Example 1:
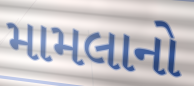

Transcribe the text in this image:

મામલાનો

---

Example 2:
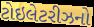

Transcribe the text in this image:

ટોઇલેટરીઝનો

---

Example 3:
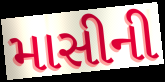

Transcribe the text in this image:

માસીની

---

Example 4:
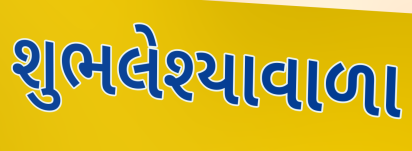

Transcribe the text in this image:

શુભલેશ્યાવાળા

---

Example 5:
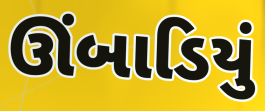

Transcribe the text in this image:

ઊંબાડિયું